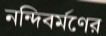
নন্দিবর্মণের